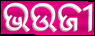
ଭଉଜୀ